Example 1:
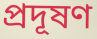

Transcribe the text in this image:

প্ৰদূষণ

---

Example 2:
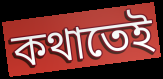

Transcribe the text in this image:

কথাতেই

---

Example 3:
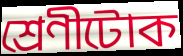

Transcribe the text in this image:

শ্ৰেণীটোক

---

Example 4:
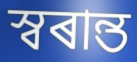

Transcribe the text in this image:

স্বৰান্ত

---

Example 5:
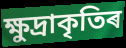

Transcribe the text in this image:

ক্ষুদ্ৰাকৃতিৰ